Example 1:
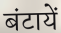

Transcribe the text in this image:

बंटायें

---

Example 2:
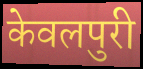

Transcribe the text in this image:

केवलपुरी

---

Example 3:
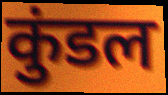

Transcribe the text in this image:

कुंडल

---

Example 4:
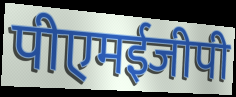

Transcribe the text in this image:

पीएमईजीपी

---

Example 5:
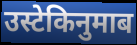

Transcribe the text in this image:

उस्टेकिनुमाब